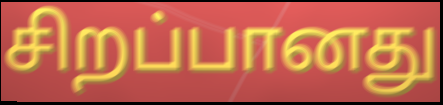
சிறப்பானது